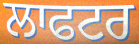
ਲਾਫਟਰ